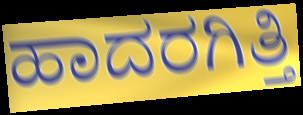
ಹಾದರಗಿತ್ತಿ